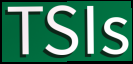
TSIs